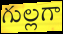
గుల్లగా